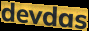
devdas